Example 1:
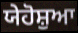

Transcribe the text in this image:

ਯੇਹੋਸ਼ੁਆ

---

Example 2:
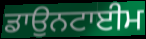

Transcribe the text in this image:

ਡਾਉਨਟਾਈਮ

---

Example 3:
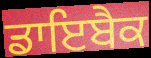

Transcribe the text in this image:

ਡਾਇਬੈਕ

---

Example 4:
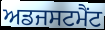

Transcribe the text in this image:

ਅਡਜਸਟਮੈਂਟ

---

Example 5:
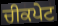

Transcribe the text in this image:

ਚੀਕਪੇਟ